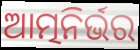
ଆତ୍ମନିର୍ଭର